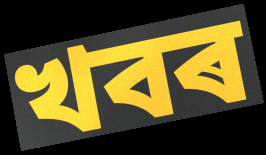
খবৰ